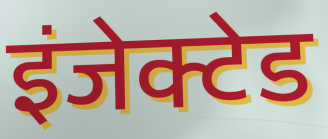
इंजेक्टेड